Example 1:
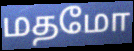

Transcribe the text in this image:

மதமோ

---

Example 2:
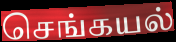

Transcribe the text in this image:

செங்கயல்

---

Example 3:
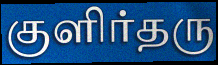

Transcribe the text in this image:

குளிர்தரு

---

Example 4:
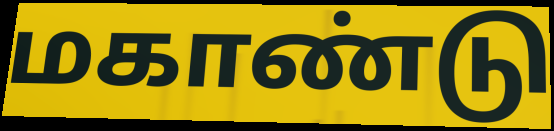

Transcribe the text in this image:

மகாண்டு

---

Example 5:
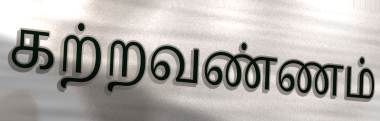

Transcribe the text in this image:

கற்றவண்ணம்